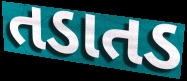
તડાતડ